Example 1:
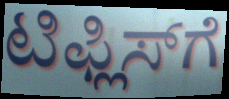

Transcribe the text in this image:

ಟಿಫ್ಲಿಸ್‍ಗೆ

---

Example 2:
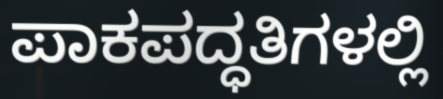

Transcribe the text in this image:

ಪಾಕಪದ್ಧತಿಗಳಲ್ಲಿ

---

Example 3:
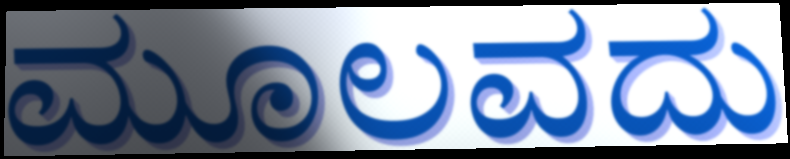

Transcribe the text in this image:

ಮೂಲವದು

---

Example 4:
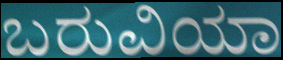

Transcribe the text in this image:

ಬರುವಿಯಾ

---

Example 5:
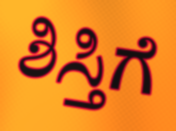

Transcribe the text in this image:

ಶಿಸ್ತಿಗೆ